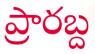
ప్రారబ్ద